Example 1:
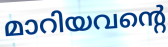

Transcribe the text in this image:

മാറിയവന്റെ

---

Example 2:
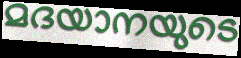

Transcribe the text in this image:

മദയാനയുടെ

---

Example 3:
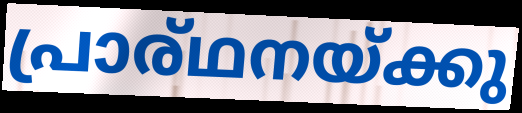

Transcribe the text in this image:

പ്രാര്ഥനയ്ക്കു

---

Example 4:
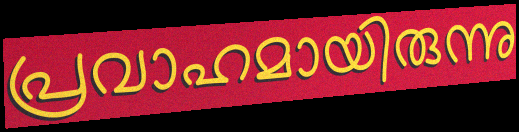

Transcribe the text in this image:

പ്രവാഹമായിരുന്നു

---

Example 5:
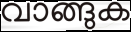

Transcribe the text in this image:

വാങ്ങുക